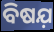
ବିଷଯ଼